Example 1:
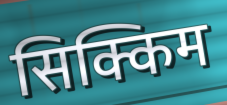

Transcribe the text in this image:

सिक्किम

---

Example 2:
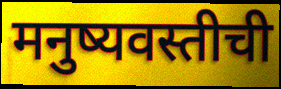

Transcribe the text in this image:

मनुष्यवस्तीची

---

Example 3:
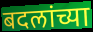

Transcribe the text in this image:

बदलांच्या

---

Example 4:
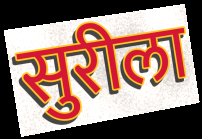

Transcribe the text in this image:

सुरीला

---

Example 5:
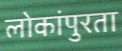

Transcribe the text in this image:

लोकांपुरता